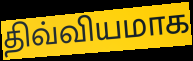
திவ்வியமாக